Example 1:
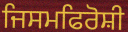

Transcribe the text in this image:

ਜਿਸਮਫਿਰੋਸ਼ੀ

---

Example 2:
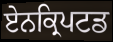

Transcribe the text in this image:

ਏਨਕ੍ਰਿਪਟਡ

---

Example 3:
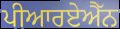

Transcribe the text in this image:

ਪੀਆਰਏਐੱਨ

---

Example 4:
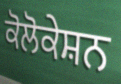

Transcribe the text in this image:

ਕੋਲੋਕੇਸ਼ਨ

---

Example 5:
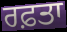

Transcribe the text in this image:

ਰਫ਼ਤਾ